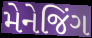
મેનેજિંગ